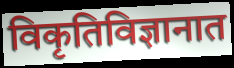
विकृतिविज्ञानात